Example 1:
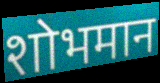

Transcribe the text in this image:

शोभमान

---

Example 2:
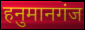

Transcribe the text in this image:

हनुमानगंज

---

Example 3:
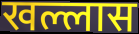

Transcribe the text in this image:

खल्लास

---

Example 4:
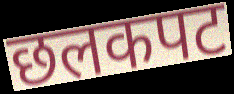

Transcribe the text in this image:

छलकपट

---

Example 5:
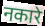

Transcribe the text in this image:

नकारे